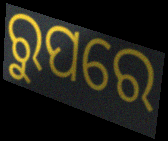
ରୁପରେ